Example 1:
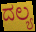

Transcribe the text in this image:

ದಲ್ಯ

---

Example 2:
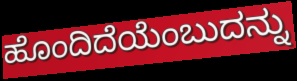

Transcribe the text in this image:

ಹೊಂದಿದೆಯೆಂಬುದನ್ನು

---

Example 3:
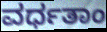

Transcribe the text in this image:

ವರ್ಧತಾಂ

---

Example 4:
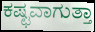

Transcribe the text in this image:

ಕಷ್ಟವಾಗುತ್ತಾ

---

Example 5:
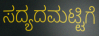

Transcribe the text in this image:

ಸದ್ಯದಮಟ್ಟಿಗೆ